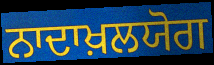
ਨਾਦਾਖ਼ਲਯੋਗ